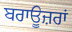
ਬਰਾਊਜ਼ਰਾਂ